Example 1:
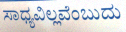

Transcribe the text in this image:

ಸಾಧ್ಯವಿಲ್ಲವೆಂಬುದು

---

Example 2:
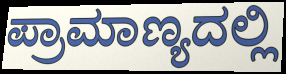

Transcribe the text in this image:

ಪ್ರಾಮಾಣ್ಯದಲ್ಲಿ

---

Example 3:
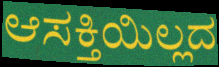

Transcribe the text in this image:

ಆಸಕ್ತಿಯಿಲ್ಲದ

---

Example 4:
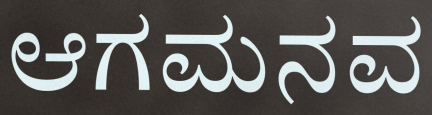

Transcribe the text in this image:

ಆಗಮನವ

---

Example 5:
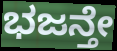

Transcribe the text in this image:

ಭಜನ್ತೇ